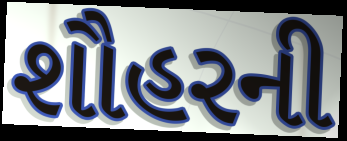
શૌહરની